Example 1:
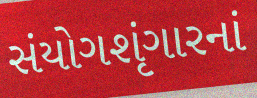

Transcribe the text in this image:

સંયોગશૃંગારનાં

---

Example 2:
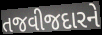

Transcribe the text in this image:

તજવીજદારને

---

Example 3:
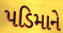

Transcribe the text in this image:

પડિમાને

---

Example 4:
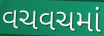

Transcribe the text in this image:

વચવચમાં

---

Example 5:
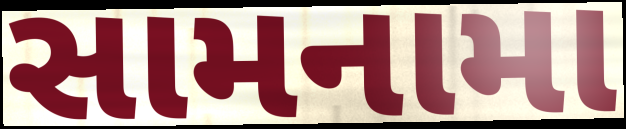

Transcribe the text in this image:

સામનામા